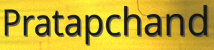
Pratapchand